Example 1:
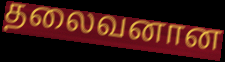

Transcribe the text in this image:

தலைவனான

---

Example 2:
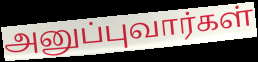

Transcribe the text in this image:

அனுப்புவார்கள்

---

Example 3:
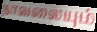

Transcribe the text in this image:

நாவலையும்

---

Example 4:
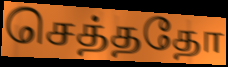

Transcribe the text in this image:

செத்ததோ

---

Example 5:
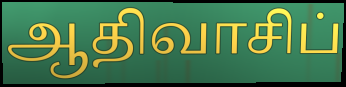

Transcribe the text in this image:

ஆதிவாசிப்